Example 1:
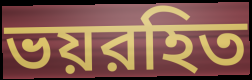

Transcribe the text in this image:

ভয়রহিত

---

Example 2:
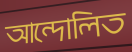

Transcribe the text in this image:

আন্দোলিত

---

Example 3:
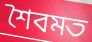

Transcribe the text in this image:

শৈবমত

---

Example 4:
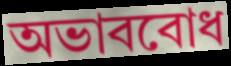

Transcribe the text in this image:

অভাববোধ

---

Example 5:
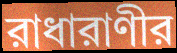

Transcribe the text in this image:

রাধারাণীর